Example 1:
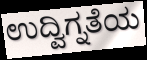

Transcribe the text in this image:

ಉದ್ವಿಗ್ನತೆಯ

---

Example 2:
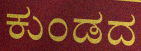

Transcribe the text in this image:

ಕುಂಡದ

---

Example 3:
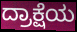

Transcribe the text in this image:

ದ್ರಾಕ್ಷೆಯ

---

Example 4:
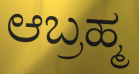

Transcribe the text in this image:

ಆಬ್ರಹ್ಮ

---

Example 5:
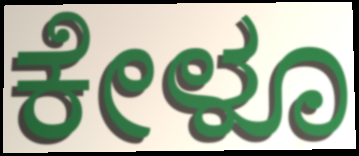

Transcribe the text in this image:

ಕೇಳೂ